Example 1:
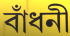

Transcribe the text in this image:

বাঁধনী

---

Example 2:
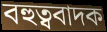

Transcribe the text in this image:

বহুত্ববাদক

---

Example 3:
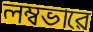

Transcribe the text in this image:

লম্বভাৱে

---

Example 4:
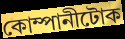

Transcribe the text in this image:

কোম্পানীটোক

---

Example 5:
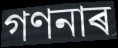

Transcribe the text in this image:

গণনাৰ